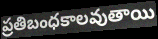
ప్రతిబంధకాలవుతాయి